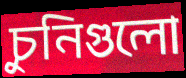
চুনিগুলো